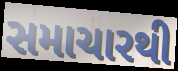
સમાચારથી